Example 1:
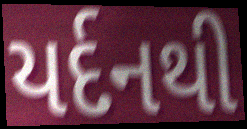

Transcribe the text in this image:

યર્દનથી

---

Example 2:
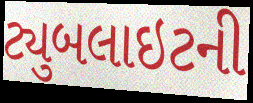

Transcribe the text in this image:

ટ્યુબલાઇટની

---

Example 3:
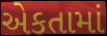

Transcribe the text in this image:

એકતામાં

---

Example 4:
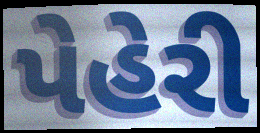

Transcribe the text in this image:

પેહેરી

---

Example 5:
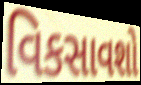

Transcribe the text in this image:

વિકસાવશો